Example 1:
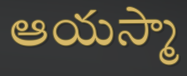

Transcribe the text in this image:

ఆయస్మా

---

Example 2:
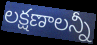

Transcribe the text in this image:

లక్షణాలన్నీ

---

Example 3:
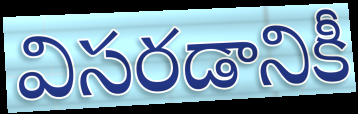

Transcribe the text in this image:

విసరడానికీ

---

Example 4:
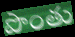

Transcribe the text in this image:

పొంతు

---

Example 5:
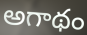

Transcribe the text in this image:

అగాథం